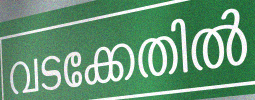
വടക്കേതിൽ